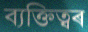
ব্যক্তিত্বৰ